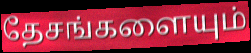
தேசங்களையும்